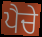
ਪੈਚੇ